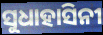
ସୁଧାହାସିନୀ